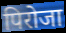
पिरोजा